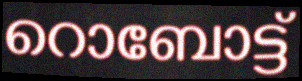
റൊബോട്ട്